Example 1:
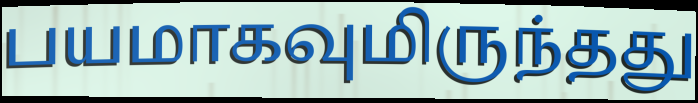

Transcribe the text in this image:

பயமாகவுமிருந்தது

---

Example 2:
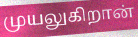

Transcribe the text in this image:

முயலுகிறான்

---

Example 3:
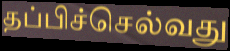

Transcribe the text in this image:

தப்பிச்செல்வது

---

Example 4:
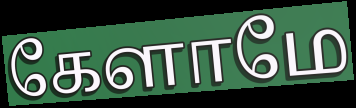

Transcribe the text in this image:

கேளாமே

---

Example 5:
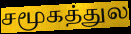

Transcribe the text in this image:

சமூகத்துல